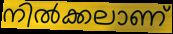
നിൽക്കലാണ്